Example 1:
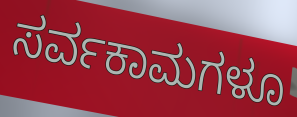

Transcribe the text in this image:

ಸರ್ವಕಾಮಗಳೂ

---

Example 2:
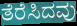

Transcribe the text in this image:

ತೆರೆಸಿದವು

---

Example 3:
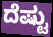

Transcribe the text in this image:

ದೆಷ್ಟು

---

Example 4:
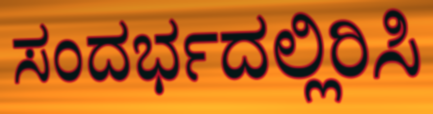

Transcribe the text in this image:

ಸಂದರ್ಭದಲ್ಲಿರಿಸಿ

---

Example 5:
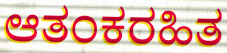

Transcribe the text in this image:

ಆತಂಕರಹಿತ